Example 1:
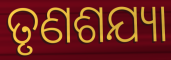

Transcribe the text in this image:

ତୃଣଶଯ୍ୟା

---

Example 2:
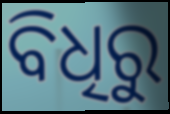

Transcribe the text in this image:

ବିଧିରୁ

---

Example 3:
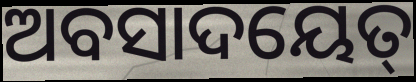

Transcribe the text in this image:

ଅବସାଦୟେତ୍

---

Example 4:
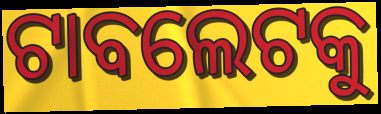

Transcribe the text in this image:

ଟାବଲେଟକୁ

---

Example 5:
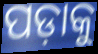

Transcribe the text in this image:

ପଡ଼ାକୁ